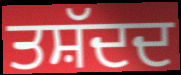
ਤਸ਼ੱਦਦ